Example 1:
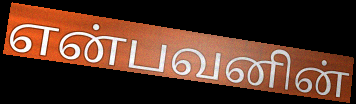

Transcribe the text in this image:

என்பவனின்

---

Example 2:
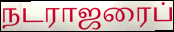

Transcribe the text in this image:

நடராஜரைப்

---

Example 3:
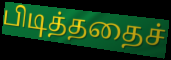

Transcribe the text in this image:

பிடித்ததைச்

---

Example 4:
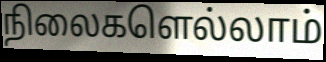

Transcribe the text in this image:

நிலைகளெல்லாம்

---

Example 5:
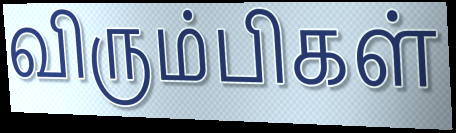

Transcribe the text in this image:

விரும்பிகள்